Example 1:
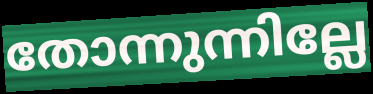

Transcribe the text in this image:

തോന്നുന്നില്ലേ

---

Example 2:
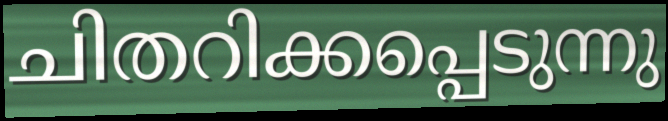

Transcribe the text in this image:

ചിതറിക്കപ്പെടുന്നു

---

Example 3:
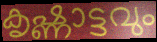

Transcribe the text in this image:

കൃഷ്ണാട്ടവും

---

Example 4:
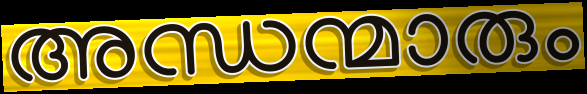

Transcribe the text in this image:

അന്ധന്മാരും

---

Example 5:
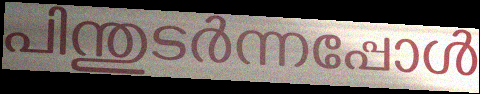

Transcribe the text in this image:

പിന്തുടർന്നപ്പോൾ